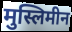
मुस्लिमीन